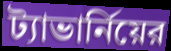
ট্যাভার্নিয়ের